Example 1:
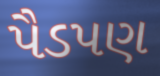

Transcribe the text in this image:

પૈડપણ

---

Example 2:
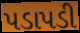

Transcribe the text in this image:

પડાપડી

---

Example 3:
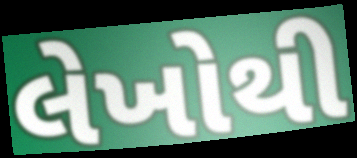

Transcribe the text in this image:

લેખોથી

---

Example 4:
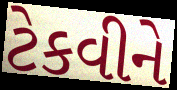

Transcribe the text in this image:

ટેકવીને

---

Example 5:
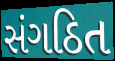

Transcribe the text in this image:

સંગઠિત